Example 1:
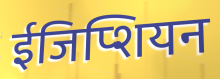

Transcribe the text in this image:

ईजिप्शियन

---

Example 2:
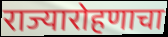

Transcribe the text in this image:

राज्यारोहणाचा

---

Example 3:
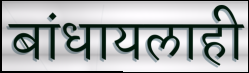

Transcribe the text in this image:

बांधायलाही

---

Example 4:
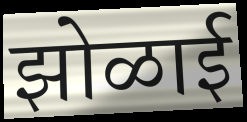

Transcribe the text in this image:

झोळाई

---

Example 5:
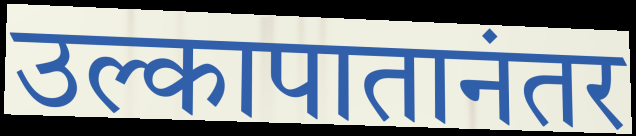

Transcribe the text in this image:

उल्कापातानंतर